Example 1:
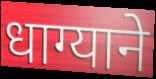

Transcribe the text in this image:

धाग्याने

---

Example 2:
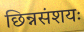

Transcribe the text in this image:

छिन्नसंशयः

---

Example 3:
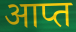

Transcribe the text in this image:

आप्त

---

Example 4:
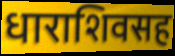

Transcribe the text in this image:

धाराशिवसह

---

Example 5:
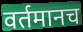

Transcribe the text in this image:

वर्तमानच